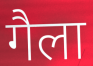
गैला